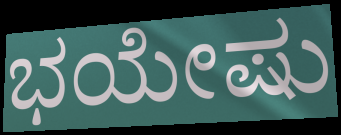
ಭಯೇಷು